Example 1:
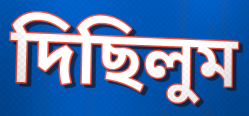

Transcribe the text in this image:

দিছিলুম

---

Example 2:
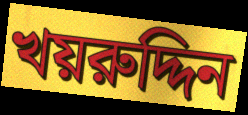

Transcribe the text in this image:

খয়রুদ্দিন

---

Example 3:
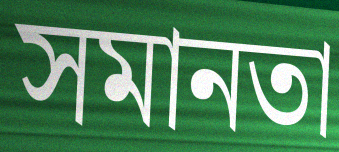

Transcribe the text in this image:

সমানতা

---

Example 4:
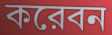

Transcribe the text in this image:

করেবন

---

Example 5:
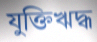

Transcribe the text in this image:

যুক্তিঋদ্ধ